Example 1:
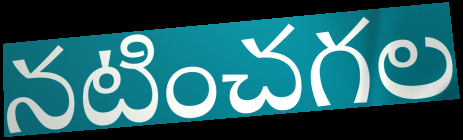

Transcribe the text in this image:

నటించగల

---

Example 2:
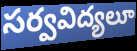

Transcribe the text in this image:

సర్వవిద్యలూ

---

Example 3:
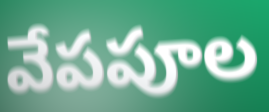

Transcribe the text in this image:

వేపపూల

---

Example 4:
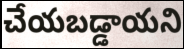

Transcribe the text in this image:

చేయబడ్డాయని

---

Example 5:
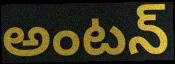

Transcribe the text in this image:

అంటన్